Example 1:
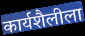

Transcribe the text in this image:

कार्यशैलीला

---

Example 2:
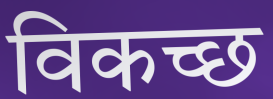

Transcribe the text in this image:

विकच्छ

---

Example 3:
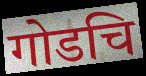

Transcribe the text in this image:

गोडचि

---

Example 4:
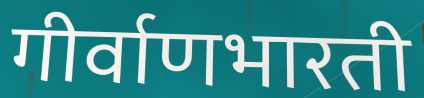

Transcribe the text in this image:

गीर्वाणभारती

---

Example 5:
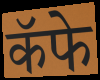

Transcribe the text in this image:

कॅफे